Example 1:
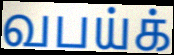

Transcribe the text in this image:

வபய்க்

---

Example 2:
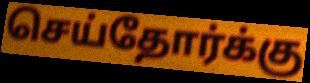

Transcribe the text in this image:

செய்தோர்க்கு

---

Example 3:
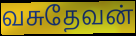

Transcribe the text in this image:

வசுதேவன்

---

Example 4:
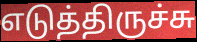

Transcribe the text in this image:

எடுத்திருச்சு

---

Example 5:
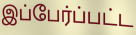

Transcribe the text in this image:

இப்பேர்ப்பட்ட